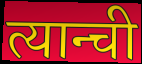
त्यान्ची